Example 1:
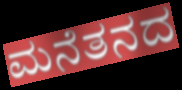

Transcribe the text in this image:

ಮನೆತನದ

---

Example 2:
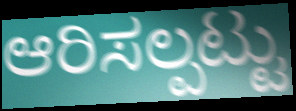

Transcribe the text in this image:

ಆರಿಸಲ್ಪಟ್ಟು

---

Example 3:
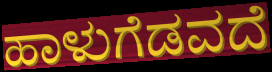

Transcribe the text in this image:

ಹಾಳುಗೆಡವದೆ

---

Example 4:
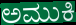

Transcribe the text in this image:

ಅಮುಕಿ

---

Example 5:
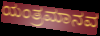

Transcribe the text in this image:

ಯಂತ್ರಮಾನವ